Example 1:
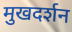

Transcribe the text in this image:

मुखदर्शन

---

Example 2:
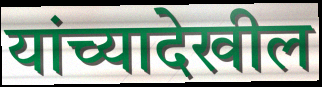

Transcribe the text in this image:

यांच्यादेखील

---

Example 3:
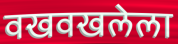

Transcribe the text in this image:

वखवखलेला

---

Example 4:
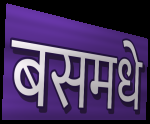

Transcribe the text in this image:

बसमधे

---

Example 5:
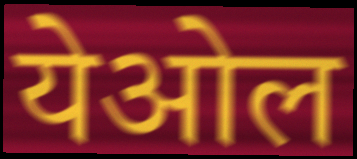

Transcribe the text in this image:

येओल